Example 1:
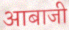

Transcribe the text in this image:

आबाजी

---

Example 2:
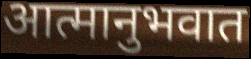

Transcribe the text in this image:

आत्मानुभवात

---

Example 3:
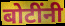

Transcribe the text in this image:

बोटींनी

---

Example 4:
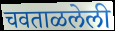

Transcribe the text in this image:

चवताळलेली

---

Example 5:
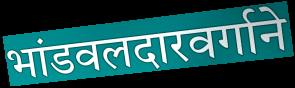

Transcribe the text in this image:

भांडवलदारवर्गाने